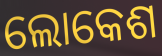
ଲୋକେଶ